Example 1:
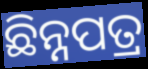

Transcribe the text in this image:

ଛିନ୍ନପତ୍ର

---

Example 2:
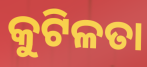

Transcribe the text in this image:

କୁଟିଳତା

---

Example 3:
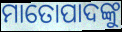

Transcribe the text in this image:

ମାତୋପାଦଙ୍କୁ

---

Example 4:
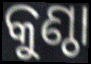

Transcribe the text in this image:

କୁଣ୍ଠା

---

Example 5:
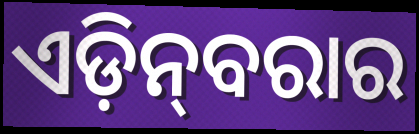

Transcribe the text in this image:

ଏଡ଼ିନ୍‍ବରାର